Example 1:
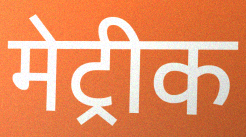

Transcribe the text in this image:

मेट्रीक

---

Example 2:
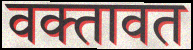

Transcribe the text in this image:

वक्तावत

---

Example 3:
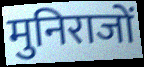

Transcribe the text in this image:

मुनिराजों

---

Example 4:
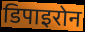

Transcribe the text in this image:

डिपाइरोन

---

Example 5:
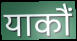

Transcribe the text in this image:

याकौं